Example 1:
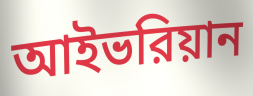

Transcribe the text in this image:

আইভরিয়ান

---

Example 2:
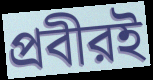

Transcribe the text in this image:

প্রবীরই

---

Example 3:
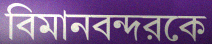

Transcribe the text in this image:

বিমানবন্দরকে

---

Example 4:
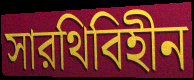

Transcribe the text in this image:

সারথিবিহীন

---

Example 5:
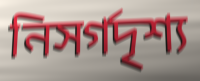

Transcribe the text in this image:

নিসর্গদৃশ্য